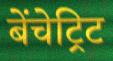
बेंचेट्रिट